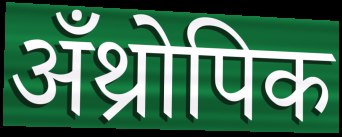
अँथ्रोपिक